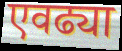
एवढ्या